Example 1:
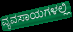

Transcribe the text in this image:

ವ್ಯವಸಾಯಗಳಲ್ಲಿ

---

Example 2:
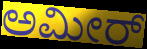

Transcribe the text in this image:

ಅಮೀರ್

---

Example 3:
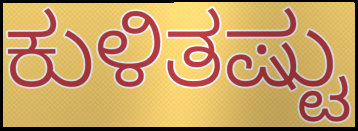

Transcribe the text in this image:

ಕುಳಿತಷ್ಟು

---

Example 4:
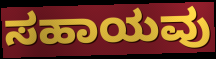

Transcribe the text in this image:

ಸಹಾಯವು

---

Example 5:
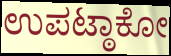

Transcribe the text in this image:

ಉಪಟ್ಠಾಕೋ